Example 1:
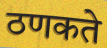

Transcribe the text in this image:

ठणकते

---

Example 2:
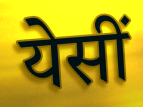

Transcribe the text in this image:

येसीं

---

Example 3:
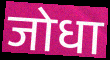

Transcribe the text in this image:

जोधा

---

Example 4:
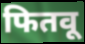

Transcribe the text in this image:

फितवू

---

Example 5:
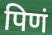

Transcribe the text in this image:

पिणं